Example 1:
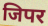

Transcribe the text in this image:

जिपर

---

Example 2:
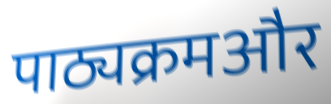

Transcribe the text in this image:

पाठ्यक्रमऔर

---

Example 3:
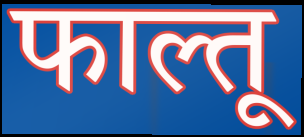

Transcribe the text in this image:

फाल्तू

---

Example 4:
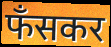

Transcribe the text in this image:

फँसकर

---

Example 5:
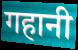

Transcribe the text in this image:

गहानी